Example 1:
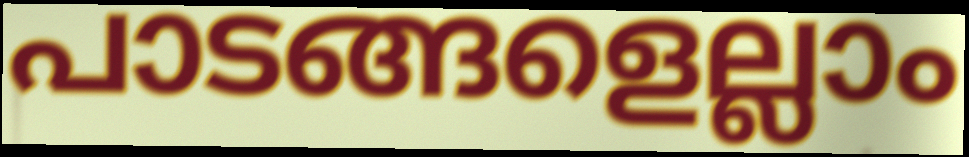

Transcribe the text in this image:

പാടങ്ങളെല്ലാം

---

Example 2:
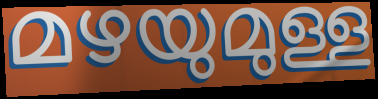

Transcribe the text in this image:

മഴയുമുള്ള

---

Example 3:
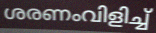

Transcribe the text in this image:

ശരണംവിളിച്ച്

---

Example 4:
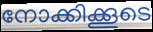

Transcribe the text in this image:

നോക്കിക്കൂടെ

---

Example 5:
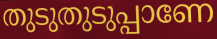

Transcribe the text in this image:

തുടുതുടുപ്പാണേ